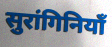
सुरांगिनियाँ